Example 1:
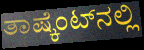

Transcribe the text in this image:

ತಾಷ್ಕೆಂಟ್‌ನಲ್ಲಿ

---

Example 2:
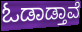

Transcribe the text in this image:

ಓಡಾಡ್ತಾವೆ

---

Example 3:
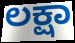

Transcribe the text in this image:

ಲಕ್ಷಾ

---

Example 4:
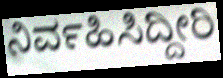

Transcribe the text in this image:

ನಿರ್ವಹಿಸಿದ್ದೀರಿ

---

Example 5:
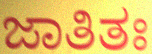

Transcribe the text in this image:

ಜಾತಿತಃ